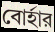
বোর্হার